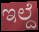
ಇಲ್ದೆ